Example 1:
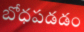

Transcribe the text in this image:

బోధపడడం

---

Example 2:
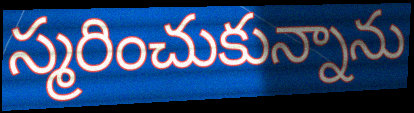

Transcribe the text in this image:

స్మరించుకున్నాను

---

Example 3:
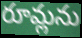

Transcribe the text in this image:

రూమ్లను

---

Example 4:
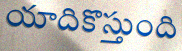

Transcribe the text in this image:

యాదికొస్తుంది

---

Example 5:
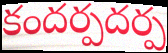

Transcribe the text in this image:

కందర్పదర్ప